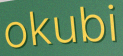
okubi